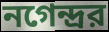
নগেন্দ্রর